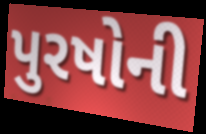
પુરષોની